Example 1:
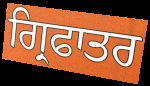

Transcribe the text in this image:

ਗ੍ਰਿਫਾਤਰ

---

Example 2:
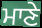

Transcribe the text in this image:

ਮਾਣੇ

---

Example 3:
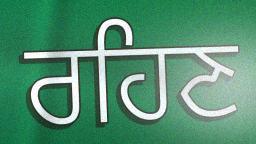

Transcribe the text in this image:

ਰਹਿਣ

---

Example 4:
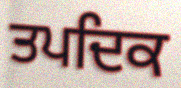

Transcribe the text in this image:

ਤਪਦਿਕ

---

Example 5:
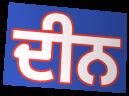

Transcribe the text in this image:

ਦੀਨ